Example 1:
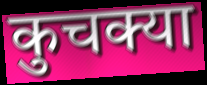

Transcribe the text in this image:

कुचक्या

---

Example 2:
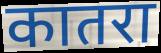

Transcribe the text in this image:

कातरा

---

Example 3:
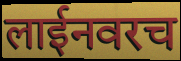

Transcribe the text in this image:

लाईनवरच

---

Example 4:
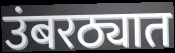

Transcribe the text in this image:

उंबरठ्यात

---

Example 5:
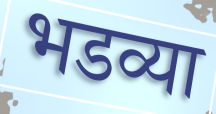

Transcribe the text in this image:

भडव्या